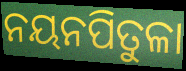
ନୟନପିତୁଳା